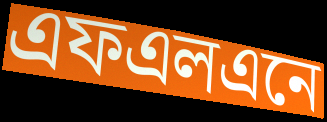
এফএলএনে